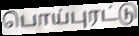
பொய்புரட்டு